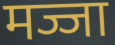
मज्जा